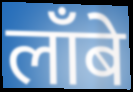
लाँबे